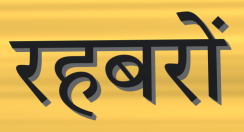
रहबरों